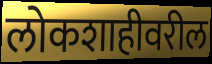
लोकशाहीवरील